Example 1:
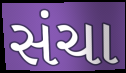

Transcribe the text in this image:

સંચા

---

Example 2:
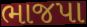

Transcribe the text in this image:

ભાજપા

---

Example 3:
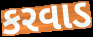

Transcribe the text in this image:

કરવાડ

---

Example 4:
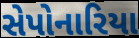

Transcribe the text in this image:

સેપોનારિયા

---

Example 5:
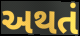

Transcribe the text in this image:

અથતં